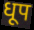
धूप